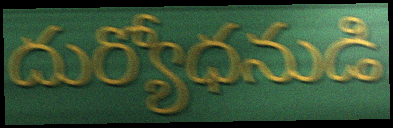
దుర్యోధనుడి